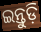
ଇନ୍ତୁଡ଼ି